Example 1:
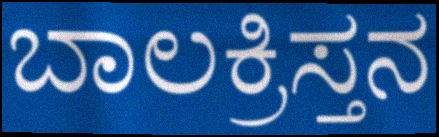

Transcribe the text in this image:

ಬಾಲಕ್ರಿಸ್ತನ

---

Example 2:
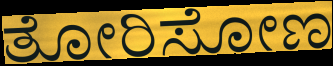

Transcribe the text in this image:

ತೋರಿಸೋಣ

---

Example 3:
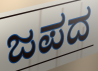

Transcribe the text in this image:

ಜಪದ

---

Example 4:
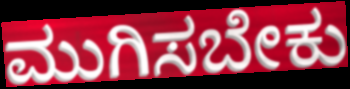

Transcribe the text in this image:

ಮುಗಿಸಬೇಕು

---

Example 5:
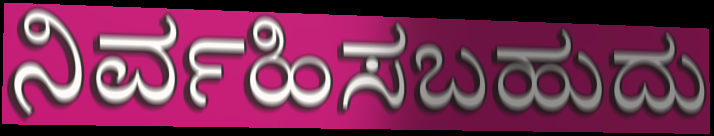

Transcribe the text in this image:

ನಿರ್ವಹಿಸಬಹುದು